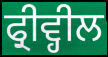
ਫ੍ਰੀਵ੍ਹੀਲ